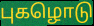
புகழொடு